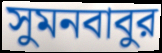
সুমনবাবুর